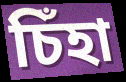
চিঁহা